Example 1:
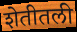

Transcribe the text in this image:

शेतीतली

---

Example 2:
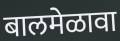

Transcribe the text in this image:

बालमेळावा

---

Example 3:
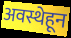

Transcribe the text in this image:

अवस्थेहून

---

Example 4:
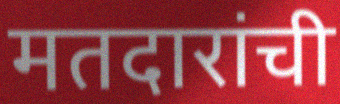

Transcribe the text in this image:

मतदारांची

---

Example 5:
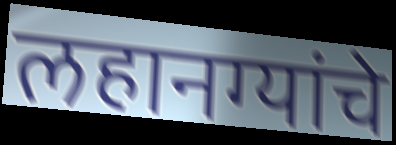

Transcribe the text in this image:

लहानग्यांचे